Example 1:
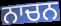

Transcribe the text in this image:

ਨਾਚਨ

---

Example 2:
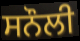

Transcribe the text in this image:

ਸਨੌਲੀ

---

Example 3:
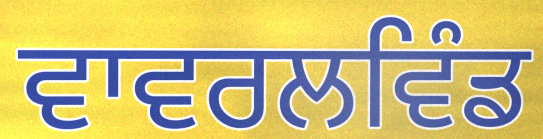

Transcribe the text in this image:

ਵਾਵਰਲਵਿੰਡ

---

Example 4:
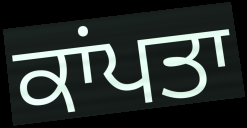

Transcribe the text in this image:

ਕਾਂਪਤਾ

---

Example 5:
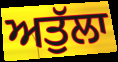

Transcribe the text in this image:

ਅਤੁੱਲਾ